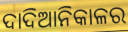
ଦାଦିଆନିକାଳର